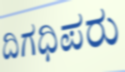
ದಿಗಧಿಪರು